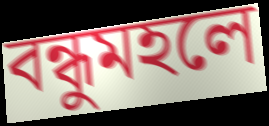
বন্ধুমহলে